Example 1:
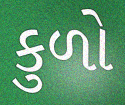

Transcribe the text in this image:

કુળો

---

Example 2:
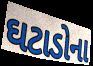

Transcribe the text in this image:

ઘટાડોના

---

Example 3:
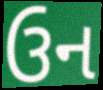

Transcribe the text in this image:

ઉન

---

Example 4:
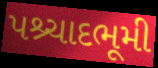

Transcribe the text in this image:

પશ્ર્ચાદભૂમી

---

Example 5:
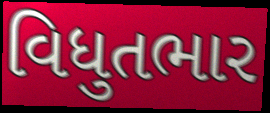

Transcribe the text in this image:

વિધુતભાર